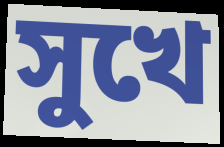
সুখে